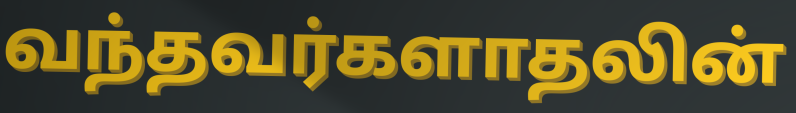
வந்தவர்களாதலின்